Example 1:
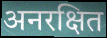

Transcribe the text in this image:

अनरक्षित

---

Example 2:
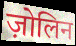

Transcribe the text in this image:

ज़ोलिन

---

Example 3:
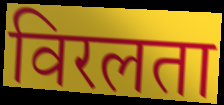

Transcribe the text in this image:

विरलता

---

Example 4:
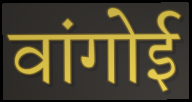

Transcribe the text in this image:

वांगोई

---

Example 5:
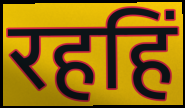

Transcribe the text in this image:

रहहिं